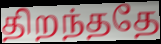
திறந்ததே